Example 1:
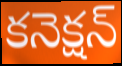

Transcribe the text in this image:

కనెక్షన్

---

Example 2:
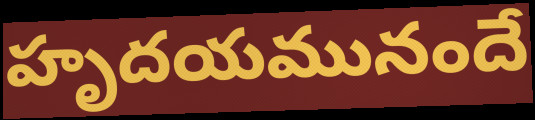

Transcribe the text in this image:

హృదయమునందే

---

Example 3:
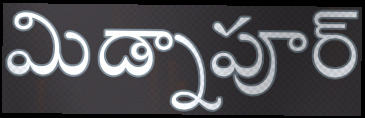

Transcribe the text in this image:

మిడ్నాపూర్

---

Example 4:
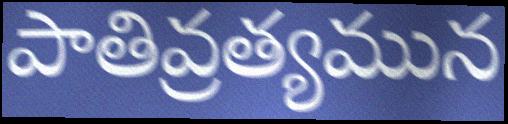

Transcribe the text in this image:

పాతివ్రత్యమున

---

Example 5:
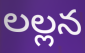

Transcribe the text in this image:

లల్లన